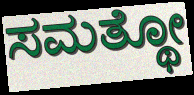
ಸಮತ್ಥೋ